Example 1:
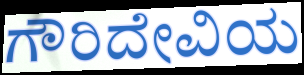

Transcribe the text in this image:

ಗೌರಿದೇವಿಯ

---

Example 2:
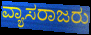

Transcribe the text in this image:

ವ್ಯಾಸರಾಜರು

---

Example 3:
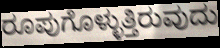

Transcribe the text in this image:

ರೂಪುಗೊಳ್ಳುತ್ತಿರುವುದು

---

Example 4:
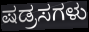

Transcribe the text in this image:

ಷಡ್ರಸಗಳು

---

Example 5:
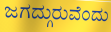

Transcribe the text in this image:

ಜಗದ್ಗುರುವೆಂದು